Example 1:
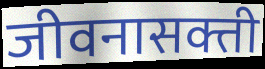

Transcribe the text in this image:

जीवनासक्ती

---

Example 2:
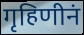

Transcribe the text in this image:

गृहिणीनं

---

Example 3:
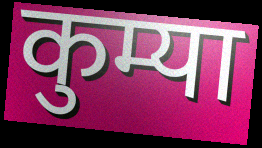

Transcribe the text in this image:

कुम्या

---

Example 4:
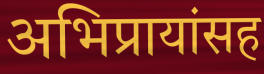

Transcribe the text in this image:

अभिप्रायांसह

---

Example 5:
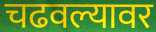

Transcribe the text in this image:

चढवल्यावर